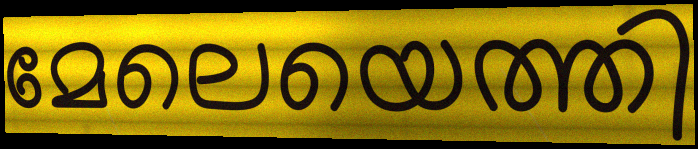
മേലെയെത്തി